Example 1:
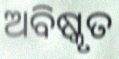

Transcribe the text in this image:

ଅବିଷ୍କୃତ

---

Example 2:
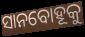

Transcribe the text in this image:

ସାନବୋହୂକୁ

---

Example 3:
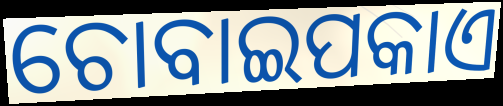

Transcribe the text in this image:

ଚୋବାଇପକାଏ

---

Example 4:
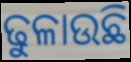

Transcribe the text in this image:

ଢୁଳାଉଛି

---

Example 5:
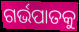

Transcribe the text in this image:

ଗର୍ଭପାତକୁ